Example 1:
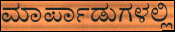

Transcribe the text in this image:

ಮಾರ್ಪಾಡುಗಳಲ್ಲಿ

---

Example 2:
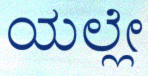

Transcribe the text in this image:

ಯಲ್ಲೇ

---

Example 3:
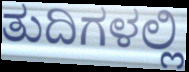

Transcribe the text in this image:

ತುದಿಗಳಲ್ಲಿ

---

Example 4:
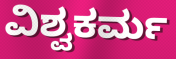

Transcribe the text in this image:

ವಿಶ್ವಕರ್ಮ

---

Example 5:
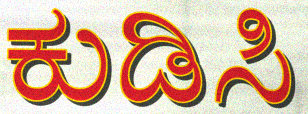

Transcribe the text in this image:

ಕುಡಿಸಿ